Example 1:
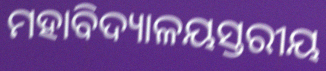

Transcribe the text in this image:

ମହାବିଦ୍ୟାଳୟସ୍ତରୀୟ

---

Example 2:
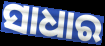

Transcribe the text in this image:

ସାଧାର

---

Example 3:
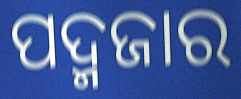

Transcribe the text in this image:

ପଦ୍ମଜାର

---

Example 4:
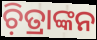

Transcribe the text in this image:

ଚ଼ିତ୍ରାଙ୍କନ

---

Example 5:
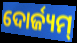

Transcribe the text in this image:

ଦୋର୍ଜ୍ୟମ୍